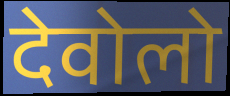
देवोलो